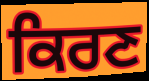
ਕਿਰਣ